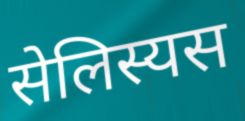
सेलिस्यस